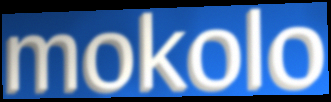
mokolo